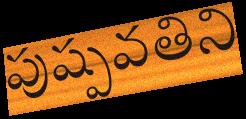
పుష్పవతిని